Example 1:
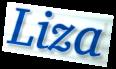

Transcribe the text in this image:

Liza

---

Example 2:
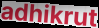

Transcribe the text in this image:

adhikrut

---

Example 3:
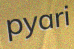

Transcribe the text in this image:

pyari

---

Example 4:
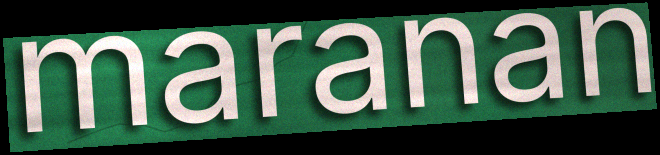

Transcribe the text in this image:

maranan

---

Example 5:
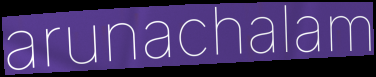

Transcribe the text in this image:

arunachalam